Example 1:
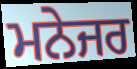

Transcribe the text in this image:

ਮਨੇਜਰ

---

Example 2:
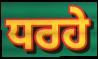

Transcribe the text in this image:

ਧਰਹੇ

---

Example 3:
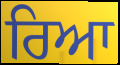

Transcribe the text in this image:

ਰਿਆ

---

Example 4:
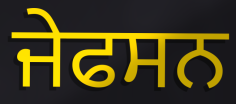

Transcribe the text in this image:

ਜੇਫਸਨ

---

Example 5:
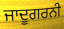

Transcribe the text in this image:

ਜਾਦੂਗਰਨੀ